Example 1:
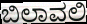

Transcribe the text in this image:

ಬಿಲಾವಲಿ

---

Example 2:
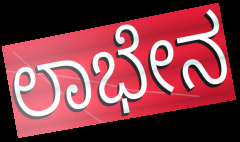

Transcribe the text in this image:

ಲಾಭೇನ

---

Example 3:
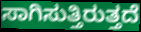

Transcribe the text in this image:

ಸಾಗಿಸುತ್ತಿರುತ್ತದೆ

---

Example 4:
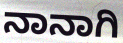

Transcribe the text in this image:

ನಾನಾಗಿ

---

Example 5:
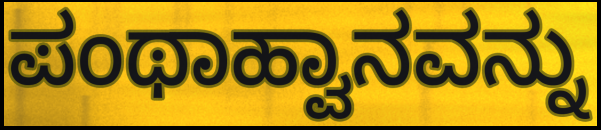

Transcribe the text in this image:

ಪಂಥಾಹ್ವಾನವನ್ನು